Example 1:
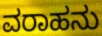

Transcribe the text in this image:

ವರಾಹನು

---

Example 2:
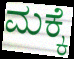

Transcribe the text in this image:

ಮಕ್ಕೆ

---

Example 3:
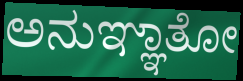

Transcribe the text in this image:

ಅನುಞ್ಞಾತೋ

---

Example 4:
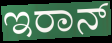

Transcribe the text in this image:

ಇರಾನ್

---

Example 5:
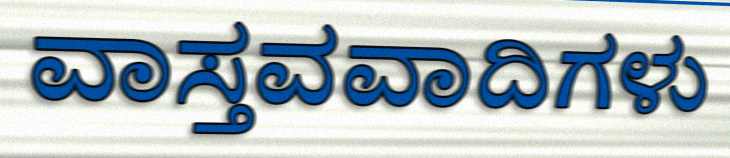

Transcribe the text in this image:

ವಾಸ್ತವವಾದಿಗಳು